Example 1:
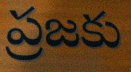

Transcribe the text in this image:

ప్రజకు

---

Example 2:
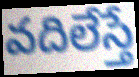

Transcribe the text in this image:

వదిలేస్తే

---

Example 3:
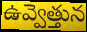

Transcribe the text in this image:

ఉవ్వెత్తున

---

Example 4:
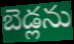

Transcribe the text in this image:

బెడ్లను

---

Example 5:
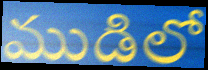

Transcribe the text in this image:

ముడిలో